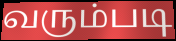
வரும்படி